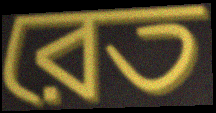
রেত